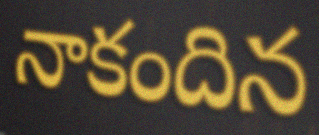
నాకందిన